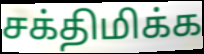
சக்திமிக்க